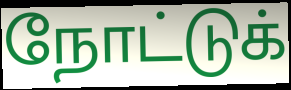
நோட்டுக்